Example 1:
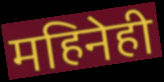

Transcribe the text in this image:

महिनेही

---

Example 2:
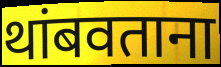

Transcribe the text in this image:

थांबवताना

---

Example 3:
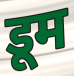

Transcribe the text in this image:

डूम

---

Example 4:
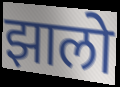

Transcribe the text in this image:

झालो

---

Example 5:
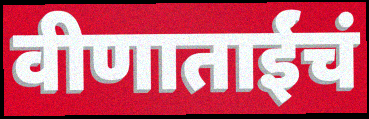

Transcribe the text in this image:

वीणाताईंचं